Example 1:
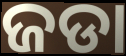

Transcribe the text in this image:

ଜଡା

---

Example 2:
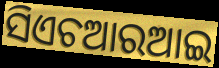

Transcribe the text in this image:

ସିଏଚଆରଆଇ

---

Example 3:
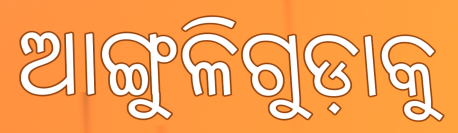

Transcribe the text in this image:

ଆଙ୍ଗୁଳିଗୁଡ଼ାକୁ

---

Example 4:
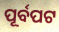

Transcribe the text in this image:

ପୂର୍ବପଟ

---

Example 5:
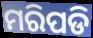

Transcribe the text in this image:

ମରିପଡି